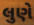
લુણે